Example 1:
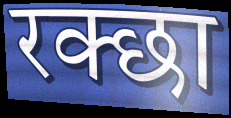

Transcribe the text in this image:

रक्छा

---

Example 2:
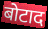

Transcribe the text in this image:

बोटाद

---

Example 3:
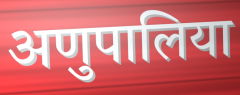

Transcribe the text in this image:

अणुपालिया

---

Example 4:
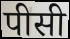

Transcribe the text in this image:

पीसी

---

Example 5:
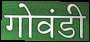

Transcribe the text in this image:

गोवंडी